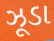
ઝૂડા